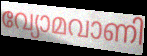
വ്യോമവാണി